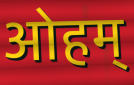
ओहम्